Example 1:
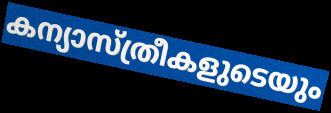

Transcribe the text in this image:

കന്യാസ്ത്രീകളുടെയും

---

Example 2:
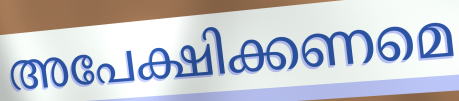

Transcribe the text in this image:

അപേക്ഷിക്കണമെ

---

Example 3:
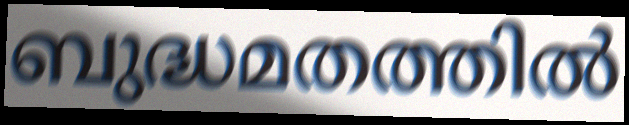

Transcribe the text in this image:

ബുദ്ധമതത്തിൽ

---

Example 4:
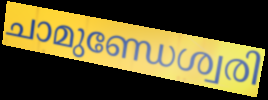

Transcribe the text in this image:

ചാമുണ്ഡേശ്വരി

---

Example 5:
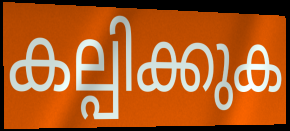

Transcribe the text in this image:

കല്പിക്കുക